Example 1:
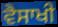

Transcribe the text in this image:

ਵੈਸਾਖੀ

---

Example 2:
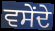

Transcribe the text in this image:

ਵਸੇਂਦੇ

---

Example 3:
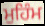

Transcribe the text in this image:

ਮੁਹਿੰਮ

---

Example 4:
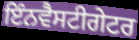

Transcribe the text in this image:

ਇੰਨਵੈਸਟੀਗੇਟਰ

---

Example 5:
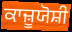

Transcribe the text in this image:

ਕਾਜ਼ੂਯੋਸ਼ੀ